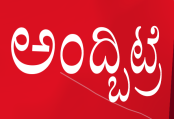
ಅಂದ್ಬಿಟ್ರೆ